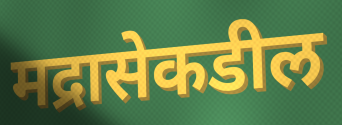
मद्रासेकडील